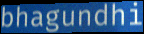
bhagundhi